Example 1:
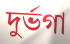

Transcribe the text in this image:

দুর্ভগা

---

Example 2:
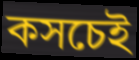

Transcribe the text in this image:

কসচেই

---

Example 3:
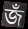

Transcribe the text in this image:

জঁ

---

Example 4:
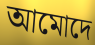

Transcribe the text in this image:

আমোদে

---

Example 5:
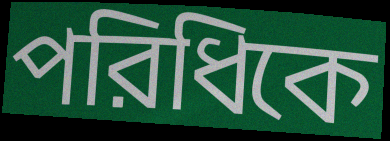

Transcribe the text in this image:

পরিধিকে